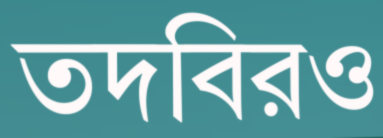
তদবিরও